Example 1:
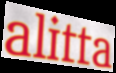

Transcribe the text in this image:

alitta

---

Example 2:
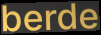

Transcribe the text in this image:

berde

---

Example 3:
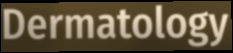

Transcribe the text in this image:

Dermatology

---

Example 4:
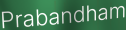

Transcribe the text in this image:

Prabandham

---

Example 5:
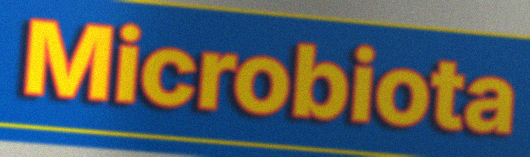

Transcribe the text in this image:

Microbiota